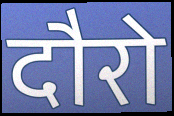
दौरो